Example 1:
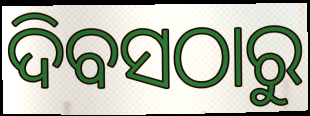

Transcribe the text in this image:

ଦିବସଠାରୁ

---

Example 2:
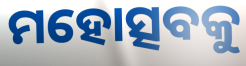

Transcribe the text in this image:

ମହୋତ୍ସବକୁ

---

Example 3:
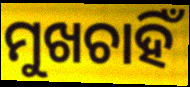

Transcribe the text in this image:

ମୁଖଚାହିଁ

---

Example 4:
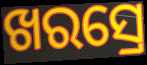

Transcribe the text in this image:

ଖରସ୍ରେ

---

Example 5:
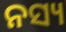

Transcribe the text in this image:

ନସ୍ୟ